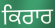
ਕਿਰਾਰ